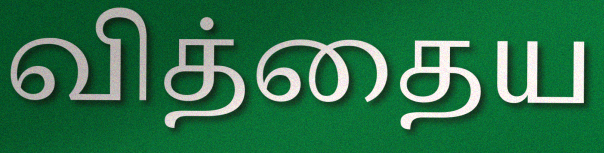
வித்தைய